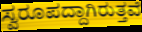
ಸ್ವರೂಪದ್ದಾಗಿರುತ್ತವೆ